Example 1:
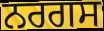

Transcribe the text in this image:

ਨਰਗਸ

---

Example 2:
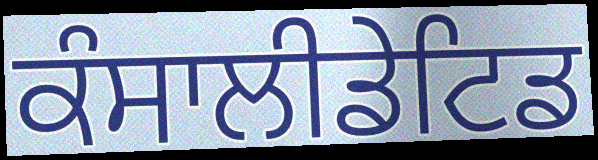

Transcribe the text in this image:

ਕੰਸਾਲੀਡੇਟਿਡ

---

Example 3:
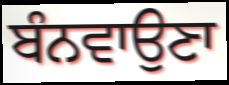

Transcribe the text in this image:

ਬੰਨਵਾਉਣਾ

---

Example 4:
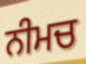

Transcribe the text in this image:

ਨੀਮਚ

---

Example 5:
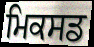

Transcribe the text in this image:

ਮਿਕਸਡ